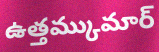
ఉత్తమ్కుమార్